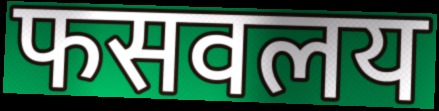
फसवलय